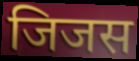
जिजस